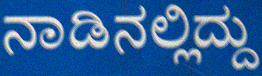
ನಾಡಿನಲ್ಲಿದ್ದು